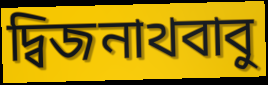
দ্বিজনাথবাবু